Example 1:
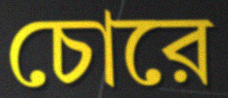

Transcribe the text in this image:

চোরে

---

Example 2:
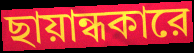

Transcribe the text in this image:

ছায়ান্ধকারে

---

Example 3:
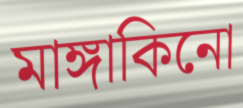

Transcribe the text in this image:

মাঙ্গাকিনো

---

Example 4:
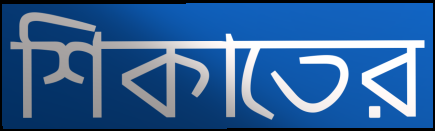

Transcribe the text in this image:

শিকাতের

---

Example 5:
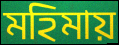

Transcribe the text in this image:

মহিমায়